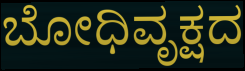
ಬೋಧಿವೃಕ್ಷದ